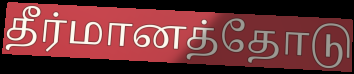
தீர்மானத்தோடு